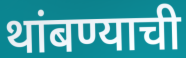
थांबण्याची